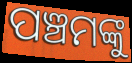
ପଞ୍ଚମଙ୍କୁ